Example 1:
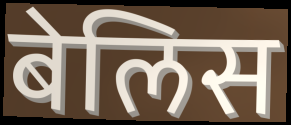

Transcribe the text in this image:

बेलिस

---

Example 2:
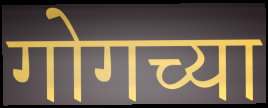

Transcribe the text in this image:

गोगच्या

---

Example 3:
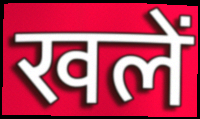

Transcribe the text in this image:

खलें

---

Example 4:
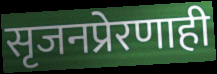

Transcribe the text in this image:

सृजनप्रेरणाही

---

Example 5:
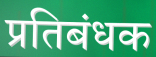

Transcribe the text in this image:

प्रतिबंधक